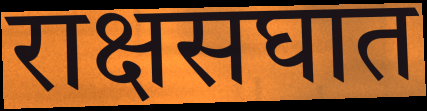
राक्षसघात